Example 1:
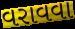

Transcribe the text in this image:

વરાવવા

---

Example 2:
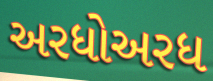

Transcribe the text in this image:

અરધોઅરધ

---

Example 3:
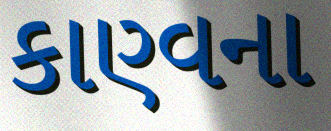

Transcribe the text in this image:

કાણ્વના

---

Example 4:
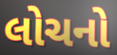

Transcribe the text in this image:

લોચનો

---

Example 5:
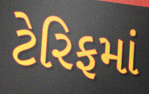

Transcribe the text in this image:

ટેરિફમાં